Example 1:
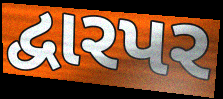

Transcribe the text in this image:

દ્વારપર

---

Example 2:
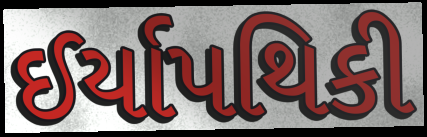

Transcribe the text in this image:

ઈર્યાપથિકી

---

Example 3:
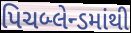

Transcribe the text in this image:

પિચબ્લેન્ડમાંથી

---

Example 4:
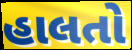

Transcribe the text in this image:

હાલતો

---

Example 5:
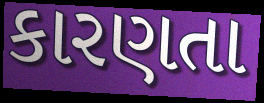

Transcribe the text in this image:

કારણતા